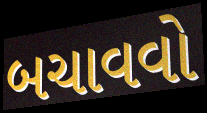
બચાવવો